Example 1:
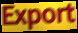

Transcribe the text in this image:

Export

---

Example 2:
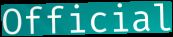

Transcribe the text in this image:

Official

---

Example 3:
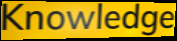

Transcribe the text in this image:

Knowledge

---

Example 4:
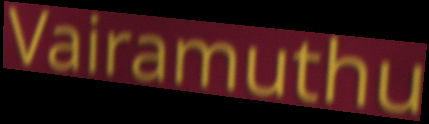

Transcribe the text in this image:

Vairamuthu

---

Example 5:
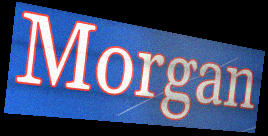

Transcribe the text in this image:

Morgan